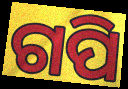
ଗପି